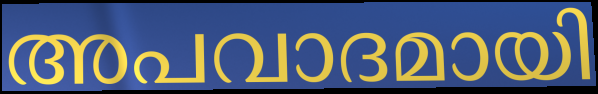
അപവാദമായി